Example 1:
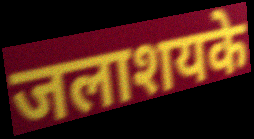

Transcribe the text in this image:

जलाशयके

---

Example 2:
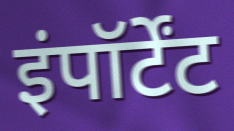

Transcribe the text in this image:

इंपॉर्टेंट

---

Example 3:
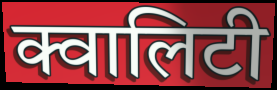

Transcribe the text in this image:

क्वालिटी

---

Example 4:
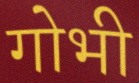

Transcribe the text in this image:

गोभी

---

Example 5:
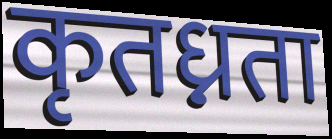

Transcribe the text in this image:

कृतध्नता